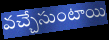
వచ్చేసుంటాయి